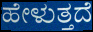
ಹೇಳುತ್ತದೆ